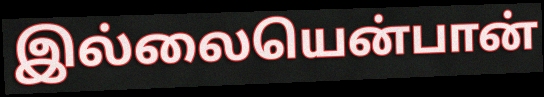
இல்லையென்பான்